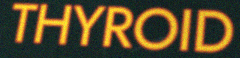
THYROID